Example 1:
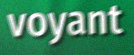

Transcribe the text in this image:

voyant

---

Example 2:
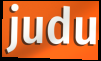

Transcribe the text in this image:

judu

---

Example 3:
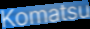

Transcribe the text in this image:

Komatsu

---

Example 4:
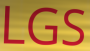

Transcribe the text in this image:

LGS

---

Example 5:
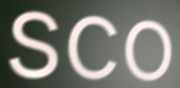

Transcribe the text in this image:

sco